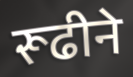
रूढीने